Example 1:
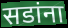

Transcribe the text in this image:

सडांना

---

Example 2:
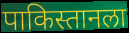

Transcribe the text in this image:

पाकिस्तानला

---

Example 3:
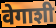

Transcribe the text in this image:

वेगाशी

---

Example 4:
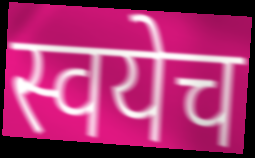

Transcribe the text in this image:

स्वयेच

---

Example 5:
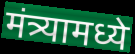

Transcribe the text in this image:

मंत्र्यामध्ये